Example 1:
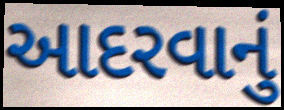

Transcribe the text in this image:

આદરવાનું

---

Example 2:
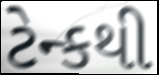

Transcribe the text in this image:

ટેન્કથી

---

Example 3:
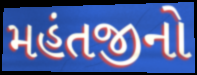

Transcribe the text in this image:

મહંતજીનો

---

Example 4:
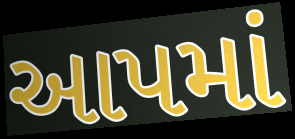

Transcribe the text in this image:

આપમાં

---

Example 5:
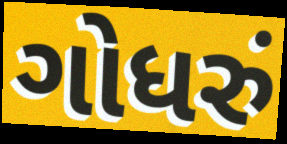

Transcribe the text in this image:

ગોધરું